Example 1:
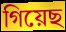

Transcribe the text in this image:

গিয়েছ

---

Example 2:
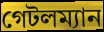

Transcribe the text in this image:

গেটলম্যান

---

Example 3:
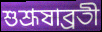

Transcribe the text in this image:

শুশ্রূষাব্রতী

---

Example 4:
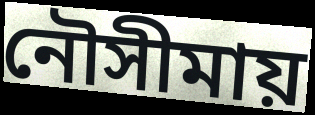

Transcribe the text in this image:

নৌসীমায়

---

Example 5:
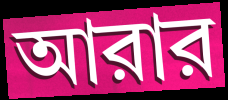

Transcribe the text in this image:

আরার